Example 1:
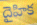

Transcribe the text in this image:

దైహిక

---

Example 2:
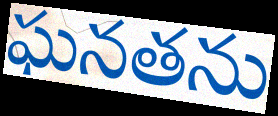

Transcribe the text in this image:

ఘనతను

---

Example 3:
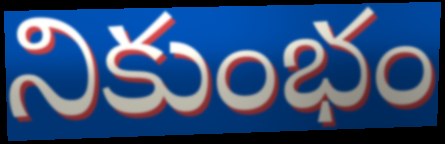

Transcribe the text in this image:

నికుంభం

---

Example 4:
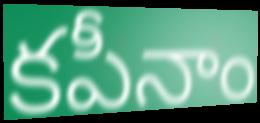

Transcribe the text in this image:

కపీనాం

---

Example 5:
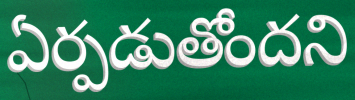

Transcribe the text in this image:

ఏర్పడుతోందని